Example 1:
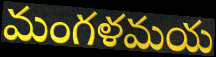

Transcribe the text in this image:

మంగళమయ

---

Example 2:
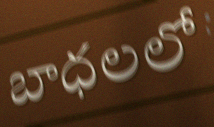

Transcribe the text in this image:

బాధలలో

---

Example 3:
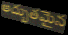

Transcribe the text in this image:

అద్బుతమైన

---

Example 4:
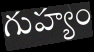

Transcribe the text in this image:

గుహ్యం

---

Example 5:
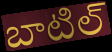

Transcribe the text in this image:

బాటిల్